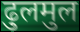
ढ़ुलमुल